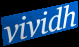
vividh